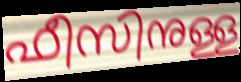
ഫീസിനുള്ള